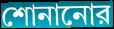
শোনানোর